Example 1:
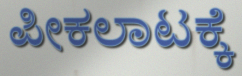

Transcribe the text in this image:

ಪೀಕಲಾಟಕ್ಕೆ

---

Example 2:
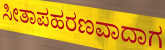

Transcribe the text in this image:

ಸೀತಾಪಹರಣವಾದಾಗ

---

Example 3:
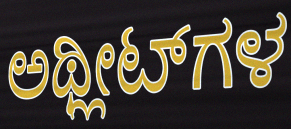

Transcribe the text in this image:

ಅಥ್ಲೀಟ್‌ಗಳ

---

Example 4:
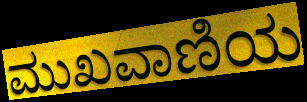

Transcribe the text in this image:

ಮುಖವಾಣಿಯ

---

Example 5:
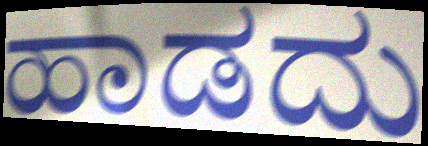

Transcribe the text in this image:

ಹಾಡದು